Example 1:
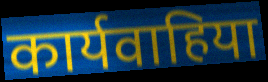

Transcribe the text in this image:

कार्यवाहिया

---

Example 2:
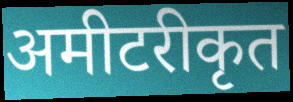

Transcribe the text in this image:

अमीटरीकृत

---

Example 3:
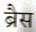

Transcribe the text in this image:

ब्रैस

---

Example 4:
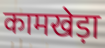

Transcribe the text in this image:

कामखेड़ा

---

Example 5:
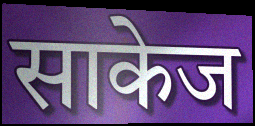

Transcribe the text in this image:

साकेज